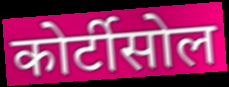
कोर्टीसोल